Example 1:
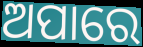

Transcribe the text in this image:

ଅପାରେ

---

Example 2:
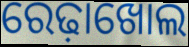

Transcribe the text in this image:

ରେଢ଼ାଖୋଲ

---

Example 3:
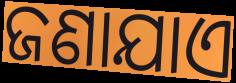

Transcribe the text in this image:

ଜଣାଯାଏ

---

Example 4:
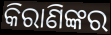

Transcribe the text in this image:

କିରାଣିଙ୍କର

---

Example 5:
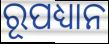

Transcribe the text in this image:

ରୂପଧ୍ୟାନ